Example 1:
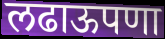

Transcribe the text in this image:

लढाऊपणा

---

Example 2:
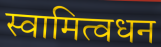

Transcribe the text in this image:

स्वामित्वधन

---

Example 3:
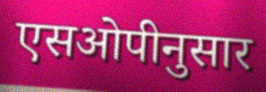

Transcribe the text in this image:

एसओपीनुसार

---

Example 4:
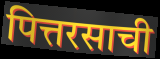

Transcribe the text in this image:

पित्तरसाची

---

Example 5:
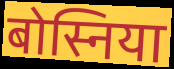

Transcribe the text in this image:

बोस्निया